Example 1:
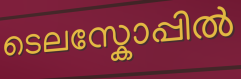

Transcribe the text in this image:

ടെലസ്കോപ്പിൽ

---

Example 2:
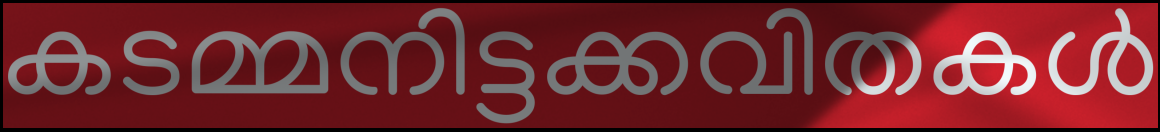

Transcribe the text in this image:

കടമ്മനിട്ടക്കവിതകൾ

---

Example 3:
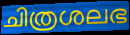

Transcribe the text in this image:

ചിത്രശലഭ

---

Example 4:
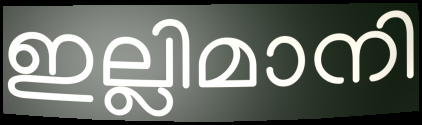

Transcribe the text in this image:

ഇല്ലിമാനി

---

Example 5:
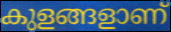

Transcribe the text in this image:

കുളങ്ങളാണ്